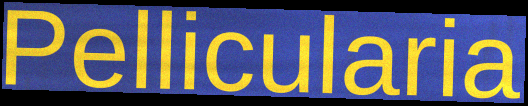
Pellicularia